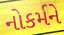
નોકર્મને